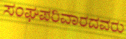
ಸಂಘಪರಿವಾರದವರು